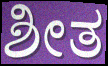
ಶೀತ